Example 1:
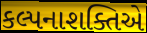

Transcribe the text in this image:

કલ્પનાશક્તિએ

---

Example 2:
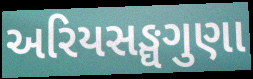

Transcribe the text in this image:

અરિયસઙ્ઘગુણા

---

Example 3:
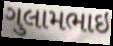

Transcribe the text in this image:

ગુલામભાઇ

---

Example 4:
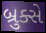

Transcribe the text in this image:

બ્રુક્સે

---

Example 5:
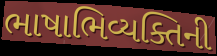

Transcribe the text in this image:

ભાષાભિવ્યક્તિની